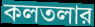
কলতলার